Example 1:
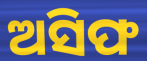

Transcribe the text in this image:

ଅସିଫ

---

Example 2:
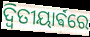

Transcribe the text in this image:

ଦ୍ଵିତୀୟାର୍ଵରେ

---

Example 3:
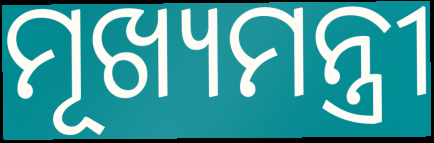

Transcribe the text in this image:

ମୂଖ୍ୟମନ୍ତ୍ରୀ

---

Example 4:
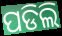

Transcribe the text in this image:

ପଡିଲି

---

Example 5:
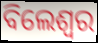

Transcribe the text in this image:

ବିଲେଶ୍ଵର